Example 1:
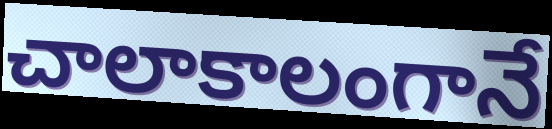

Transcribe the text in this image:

చాలాకాలంగానే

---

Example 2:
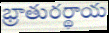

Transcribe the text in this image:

భ్రాతురర్థాయ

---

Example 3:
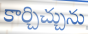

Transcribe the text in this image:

కార్చిచ్చును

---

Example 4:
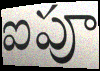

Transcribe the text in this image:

ఐపూ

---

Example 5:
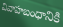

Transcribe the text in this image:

వివాహబంధానికి